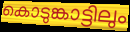
കൊടുങ്കാട്ടിലും